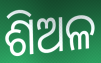
ଶିଅଳ